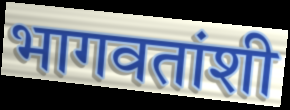
भागवतांशी